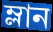
ম্লান